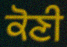
ਕੋਣੀ